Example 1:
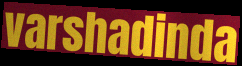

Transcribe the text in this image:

varshadinda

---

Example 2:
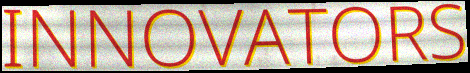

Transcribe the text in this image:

INNOVATORS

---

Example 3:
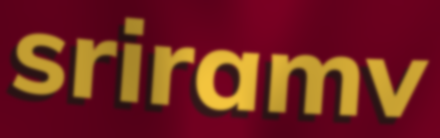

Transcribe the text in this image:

sriramv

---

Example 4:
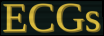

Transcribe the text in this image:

ECGs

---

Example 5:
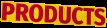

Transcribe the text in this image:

PRODUCTS